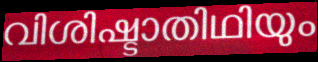
വിശിഷ്ടാതിഥിയും